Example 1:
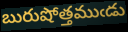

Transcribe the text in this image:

బురుషోత్తముఁడు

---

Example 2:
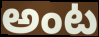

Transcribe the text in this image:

అంట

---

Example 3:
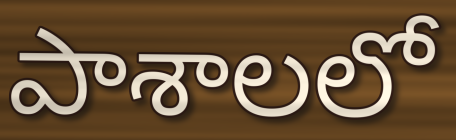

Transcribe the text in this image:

పాశాలలో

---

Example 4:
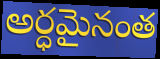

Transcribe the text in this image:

అర్ధమైనంత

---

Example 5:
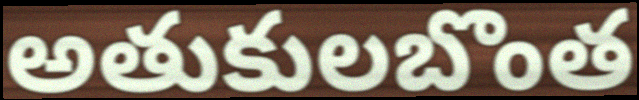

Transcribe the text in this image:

అతుకులబొంత